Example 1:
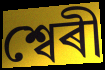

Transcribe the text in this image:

শ্বেৰী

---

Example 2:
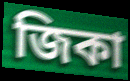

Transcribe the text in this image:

জিকা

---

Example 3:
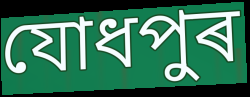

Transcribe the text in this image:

যোধপুৰ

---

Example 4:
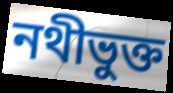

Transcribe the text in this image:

নথীভুক্ত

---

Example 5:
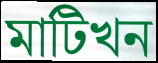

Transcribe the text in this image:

মাটিখন